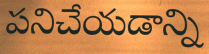
పనిచేయడాన్ని